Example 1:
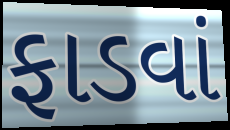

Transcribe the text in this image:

ફાડવાં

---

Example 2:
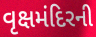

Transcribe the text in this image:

વૃક્ષમંદિરની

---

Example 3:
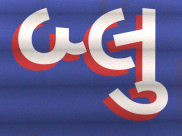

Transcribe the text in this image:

બ્લુ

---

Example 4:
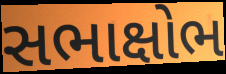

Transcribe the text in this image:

સભાક્ષોભ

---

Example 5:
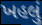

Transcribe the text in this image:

ખહલું